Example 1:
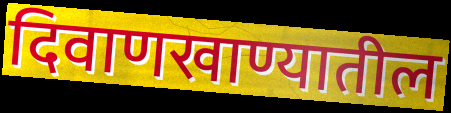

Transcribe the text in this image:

दिवाणखाण्यातील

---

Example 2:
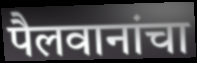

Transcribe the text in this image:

पैलवानांचा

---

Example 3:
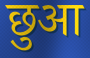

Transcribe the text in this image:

छुआ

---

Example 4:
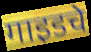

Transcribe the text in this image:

गाइडचे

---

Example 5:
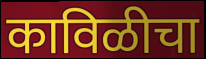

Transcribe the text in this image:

काविळीचा